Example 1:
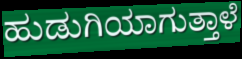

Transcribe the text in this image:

ಹುಡುಗಿಯಾಗುತ್ತಾಳೆ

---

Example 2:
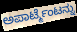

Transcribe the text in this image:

ಅಪಾರ್ಟ್ಮೆಂಟನ್ನು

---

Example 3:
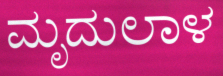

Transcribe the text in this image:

ಮೃದುಲಾಳ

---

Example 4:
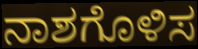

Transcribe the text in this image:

ನಾಶಗೊಳಿಸ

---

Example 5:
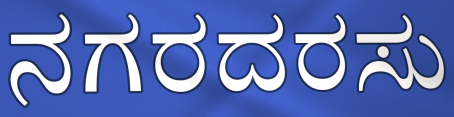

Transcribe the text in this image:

ನಗರದರಸು